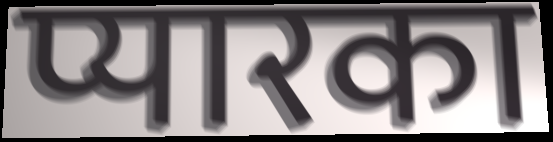
प्यारका